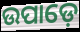
ଉପାଡ଼େ